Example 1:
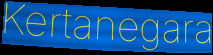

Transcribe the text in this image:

Kertanegara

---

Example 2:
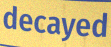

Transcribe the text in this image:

decayed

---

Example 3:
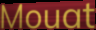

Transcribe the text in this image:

Mouat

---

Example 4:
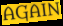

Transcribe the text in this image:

AGAIN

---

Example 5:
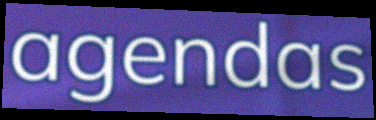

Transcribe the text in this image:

agendas